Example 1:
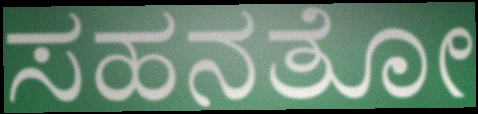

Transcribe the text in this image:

ಸಹನತೋ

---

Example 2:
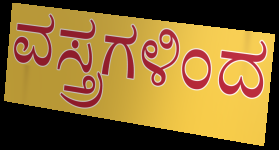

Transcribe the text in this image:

ವಸ್ತ್ರಗಳಿಂದ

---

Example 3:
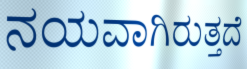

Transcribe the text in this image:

ನಯವಾಗಿರುತ್ತದೆ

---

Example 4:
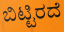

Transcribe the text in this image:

ಬಿಟ್ಟಿರದೆ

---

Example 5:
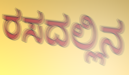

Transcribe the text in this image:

ರಸದಲ್ಲಿನ